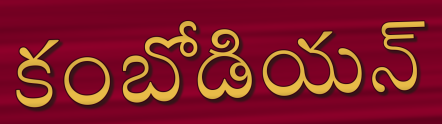
కంబోడియన్